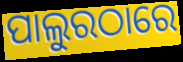
ପାଲୁରଠାରେ